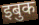
इबुक